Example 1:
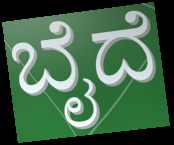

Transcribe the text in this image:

ಬೈದೆ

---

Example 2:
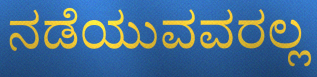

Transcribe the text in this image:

ನಡೆಯುವವರಲ್ಲ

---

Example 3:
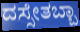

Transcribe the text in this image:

ದಸ್ಸೇತಬ್ಬಾ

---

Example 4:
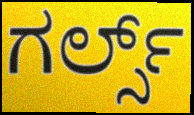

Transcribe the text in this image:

ಗರ್ಲ್ಸ್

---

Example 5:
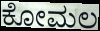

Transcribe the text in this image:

ಕೋಮಲ